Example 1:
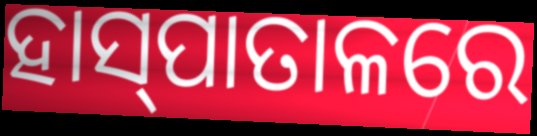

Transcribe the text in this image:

ହାସ୍‍ପାତାଳରେ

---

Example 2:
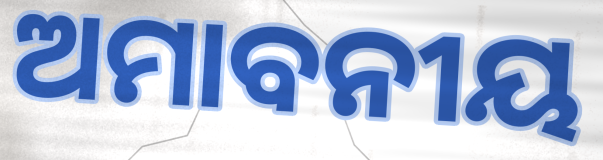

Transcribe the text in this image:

ଅମାବନୀୟ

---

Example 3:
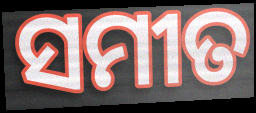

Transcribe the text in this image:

ସମୀତ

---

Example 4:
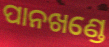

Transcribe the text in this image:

ପାନଖଣ୍ଡେ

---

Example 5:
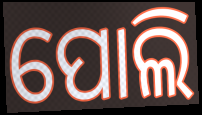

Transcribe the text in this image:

ପୋଲି